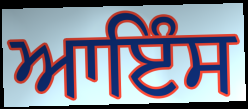
ਆਇੰਸ